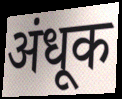
अंधूक